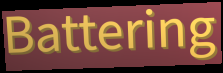
Battering